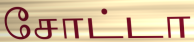
சோட்டா